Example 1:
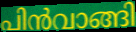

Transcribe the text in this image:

പിൻവാങ്ങി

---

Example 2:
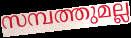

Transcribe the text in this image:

സമ്പത്തുമല്ല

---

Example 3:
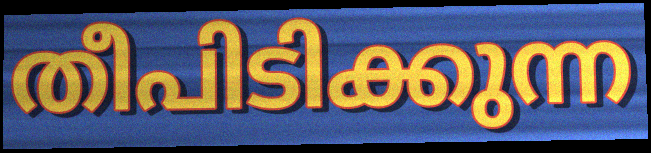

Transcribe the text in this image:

തീപിടിക്കുന്ന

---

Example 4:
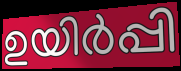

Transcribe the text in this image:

ഉയിർപ്പി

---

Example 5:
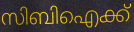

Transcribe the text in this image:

സിബിഐക്ക്